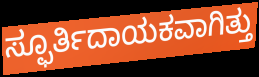
ಸ್ಫೂರ್ತಿದಾಯಕವಾಗಿತ್ತು